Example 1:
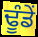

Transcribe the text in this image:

ਢੂੰਡੇਂ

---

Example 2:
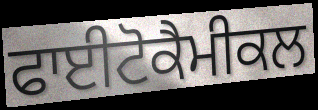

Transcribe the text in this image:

ਫਾਈਟੋਕੈਮੀਕਲ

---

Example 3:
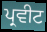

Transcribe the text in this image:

ਪ੍ਰਵੀਟ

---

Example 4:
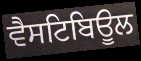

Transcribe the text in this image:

ਵੈਸਟਿਬਿਊਲ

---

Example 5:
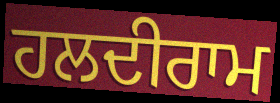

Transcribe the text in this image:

ਹਲਦੀਰਾਮ